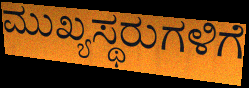
ಮುಖ್ಯಸ್ಥರುಗಳಿಗೆ